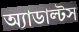
অ্যাডাল্টস